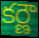
కర్ణౌ